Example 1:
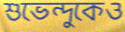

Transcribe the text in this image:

শুভেন্দুকেও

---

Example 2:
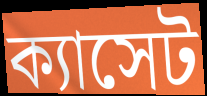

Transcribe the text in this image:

ক্যাসেট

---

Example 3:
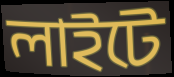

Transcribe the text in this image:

লাইটে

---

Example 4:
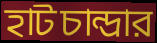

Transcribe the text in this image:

হাটচান্দ্রার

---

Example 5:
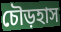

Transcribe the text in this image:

চৌড়হাস